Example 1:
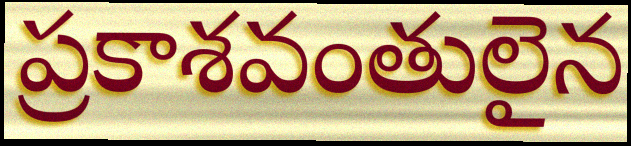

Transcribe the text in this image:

ప్రకాశవంతులైన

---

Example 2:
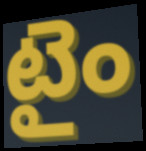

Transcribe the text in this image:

టైం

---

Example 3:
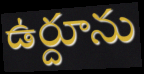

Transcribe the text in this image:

ఉర్దూను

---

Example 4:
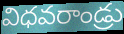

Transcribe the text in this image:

విధవరాండ్రు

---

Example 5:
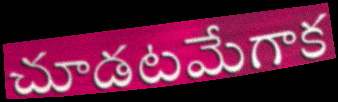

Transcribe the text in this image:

చూడటమేగాక